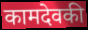
कामदेवकी